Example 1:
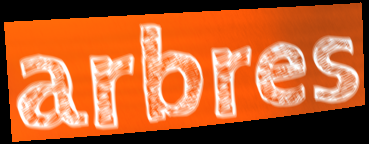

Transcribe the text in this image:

arbres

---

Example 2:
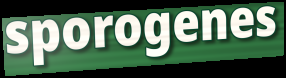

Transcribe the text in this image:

sporogenes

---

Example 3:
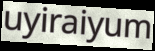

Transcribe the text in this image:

uyiraiyum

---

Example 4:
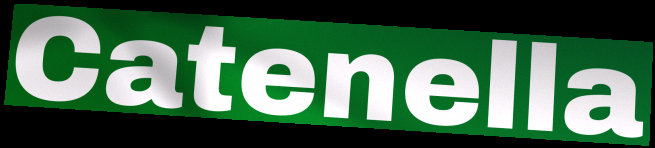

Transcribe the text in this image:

Catenella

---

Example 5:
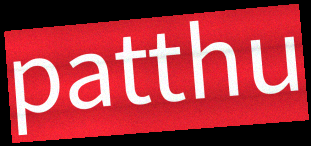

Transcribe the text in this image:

patthu